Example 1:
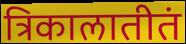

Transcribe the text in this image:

त्रिकालातीतं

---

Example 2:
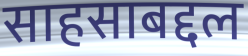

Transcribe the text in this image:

साहसाबद्दल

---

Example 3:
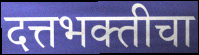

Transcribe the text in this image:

दत्तभक्तीचा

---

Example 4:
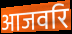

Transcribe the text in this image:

आजवरि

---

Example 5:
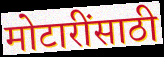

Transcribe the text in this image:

मोटारींसाठी